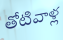
తోటివాళ్ల